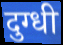
दुग्धी